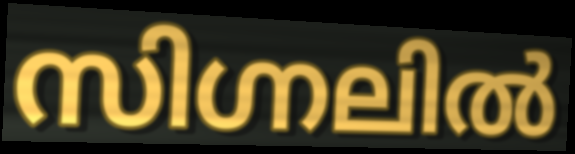
സിഗ്നലിൽ